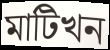
মাটিখন